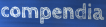
compendia